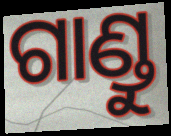
ଗାଣ୍ଡୁ